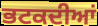
ਭਟਕਦੀਆਂ